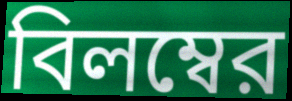
বিলম্বের